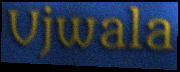
Ujwala